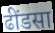
ढींडसा